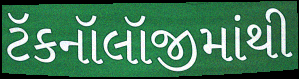
ટૅકનૉલૉજીમાંથી